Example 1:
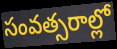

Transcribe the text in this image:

సంవత్సరాల్లో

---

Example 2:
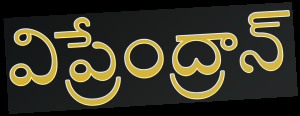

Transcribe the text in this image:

విప్రేంద్రాన్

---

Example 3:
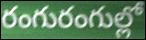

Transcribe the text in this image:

రంగురంగుల్లో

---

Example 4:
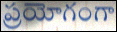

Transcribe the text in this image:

ప్రయోగంగా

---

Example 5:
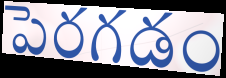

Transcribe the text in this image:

పెరగడం